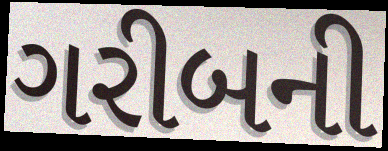
ગરીબની